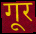
गूर